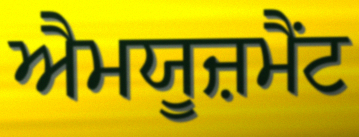
ਐਮਯੂਜ਼ਮੈਂਟ